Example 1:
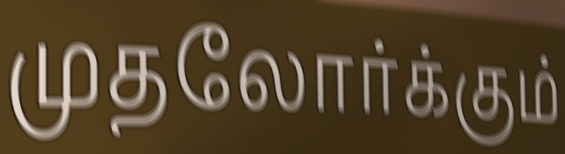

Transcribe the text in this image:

முதலோர்க்கும்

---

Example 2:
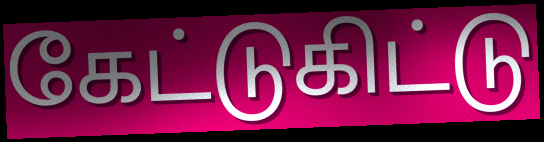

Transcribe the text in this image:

கேட்டுகிட்டு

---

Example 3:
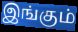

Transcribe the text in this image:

இங்கும்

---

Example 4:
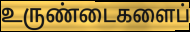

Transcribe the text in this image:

உருண்டைகளைப்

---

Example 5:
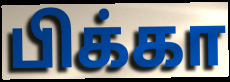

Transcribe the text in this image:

பிக்கா